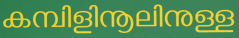
കമ്പിളിനൂലിനുള്ള